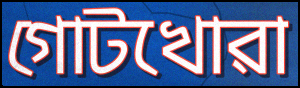
গোটখোৱা